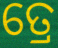
ତ୍ରେ